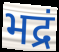
भद्रं